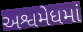
અશ્વમેધમાં